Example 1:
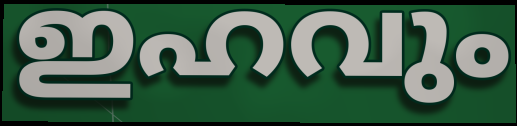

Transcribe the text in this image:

ഇഹവും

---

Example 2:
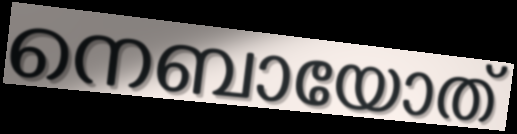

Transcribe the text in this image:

നെബായോത്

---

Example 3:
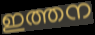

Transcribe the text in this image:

ഇത്തന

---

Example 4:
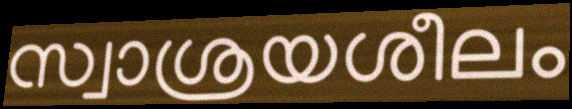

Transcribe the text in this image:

സ്വാശ്രയശീലം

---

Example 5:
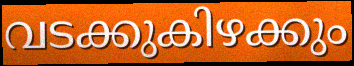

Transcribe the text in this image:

വടക്കുകിഴക്കും